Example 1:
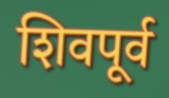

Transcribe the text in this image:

शिवपूर्व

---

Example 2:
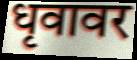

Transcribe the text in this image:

धृवावर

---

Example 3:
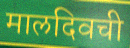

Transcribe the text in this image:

मालदिवची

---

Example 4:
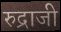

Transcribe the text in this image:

रुद्राजी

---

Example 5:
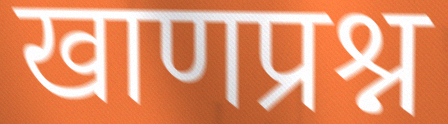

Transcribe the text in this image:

खाणप्रश्न